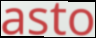
asto